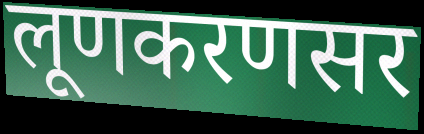
लूणकरणसर